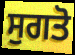
ਸੁਗਤੋ